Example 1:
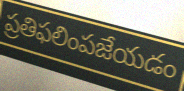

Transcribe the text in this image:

ప్రతిఫలింపజేయడం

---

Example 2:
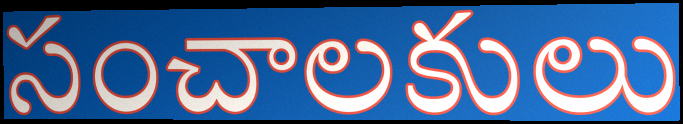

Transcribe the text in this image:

సంచాలకులు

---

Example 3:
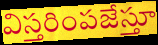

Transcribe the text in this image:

విస్తరింపజేస్తూ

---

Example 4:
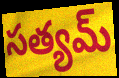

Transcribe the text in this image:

సత్యమ్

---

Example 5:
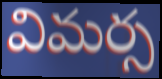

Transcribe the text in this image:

విమర్స